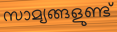
സാമ്യങ്ങളുണ്ട്